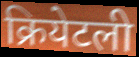
क्रियेटली